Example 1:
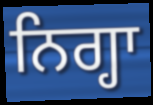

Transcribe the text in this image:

ਨਿਗ੍ਹਾ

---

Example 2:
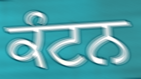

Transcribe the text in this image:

ਕੰਟਨ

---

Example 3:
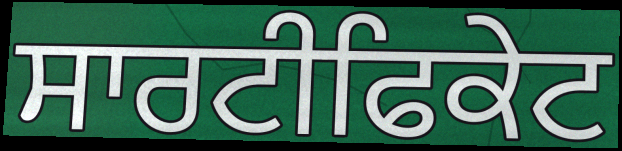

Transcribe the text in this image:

ਸਾਰਟੀਫਿਕੇਟ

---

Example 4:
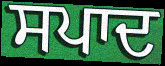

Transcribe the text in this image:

ਸਪਾਦ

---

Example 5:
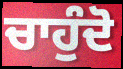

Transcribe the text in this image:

ਚਾਹੁੰਦੋ